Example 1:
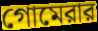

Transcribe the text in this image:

গোমেরার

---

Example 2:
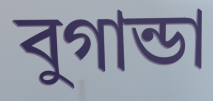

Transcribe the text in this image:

বুগান্ডা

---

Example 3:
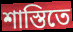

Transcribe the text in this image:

শাস্তিতে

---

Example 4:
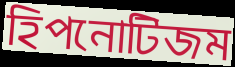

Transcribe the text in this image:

হিপনোটিজম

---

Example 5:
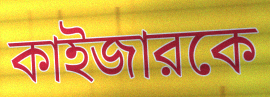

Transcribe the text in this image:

কাইজারকে